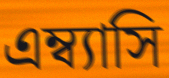
এম্ব্যাসি